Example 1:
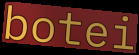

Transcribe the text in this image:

botei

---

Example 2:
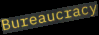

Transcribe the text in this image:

Bureaucracy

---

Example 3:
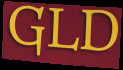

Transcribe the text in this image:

GLD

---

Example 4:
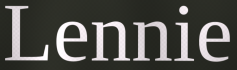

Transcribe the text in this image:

Lennie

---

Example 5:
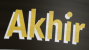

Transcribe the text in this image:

Akhir